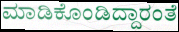
ಮಾಡಿಕೊಂಡಿದ್ದಾರಂತೆ